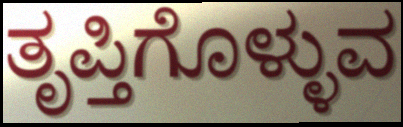
ತೃಪ್ತಿಗೊಳ್ಳುವ